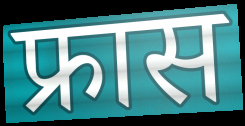
फ्रास